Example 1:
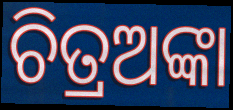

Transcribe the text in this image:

ଚିତ୍ରଅଙ୍କା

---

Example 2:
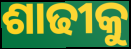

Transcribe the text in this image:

ଶାଢୀକୁ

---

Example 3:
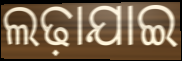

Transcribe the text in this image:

ଲଢ଼ାଯାଇ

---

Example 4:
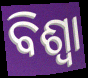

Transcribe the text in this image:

ବିଶ୍ବା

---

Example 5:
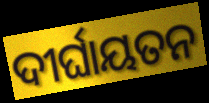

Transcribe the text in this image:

ଦୀର୍ଘାୟତନ